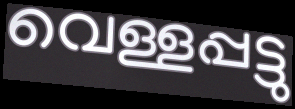
വെള്ളപ്പട്ടു